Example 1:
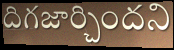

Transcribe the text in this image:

దిగజార్చిందని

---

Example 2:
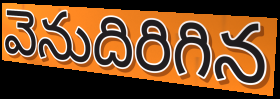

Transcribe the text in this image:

వెనుదిరిగిన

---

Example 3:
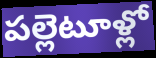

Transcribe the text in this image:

పల్లెటూళ్లో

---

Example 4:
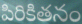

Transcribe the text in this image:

పిరికితనం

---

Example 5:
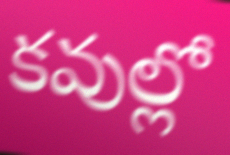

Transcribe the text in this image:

కవుల్లో